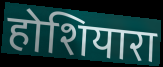
होशियारा